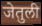
जेतुली